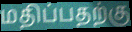
மதிப்பதற்கு